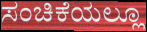
ಸಂಚಿಕೆಯಲ್ಲೂ